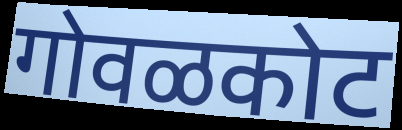
गोवळकोट